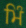
ਮਿੰ